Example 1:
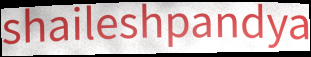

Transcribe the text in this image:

shaileshpandya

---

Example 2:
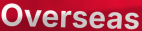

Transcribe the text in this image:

Overseas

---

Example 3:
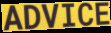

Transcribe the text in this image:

ADVICE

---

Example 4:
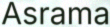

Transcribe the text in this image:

Asrama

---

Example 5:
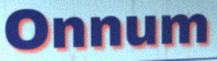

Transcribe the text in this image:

Onnum